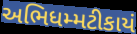
અભિધમ્મટીકાયં